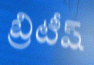
బ్రిటీష్